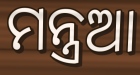
ମନ୍ତ୍ରଆ